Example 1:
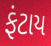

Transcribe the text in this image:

ફંટાય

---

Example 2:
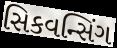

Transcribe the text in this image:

સિકવન્સિંગ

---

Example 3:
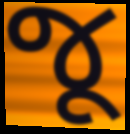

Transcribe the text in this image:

જૂ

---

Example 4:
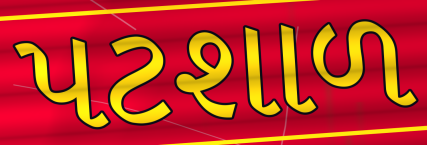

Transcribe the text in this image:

પટશાળ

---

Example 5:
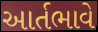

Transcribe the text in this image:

આર્તભાવે